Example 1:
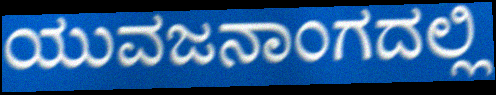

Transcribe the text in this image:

ಯುವಜನಾಂಗದಲ್ಲಿ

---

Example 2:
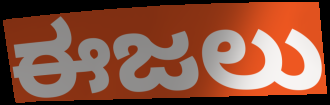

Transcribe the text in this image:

ಈಜಲು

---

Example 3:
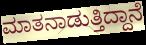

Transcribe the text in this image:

ಮಾತನಾಡುತ್ತಿದ್ದಾನೆ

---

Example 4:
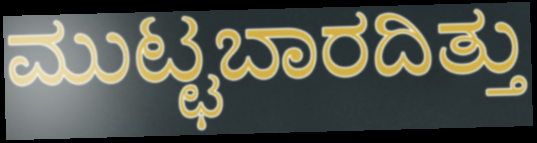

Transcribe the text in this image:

ಮುಟ್ಟಬಾರದಿತ್ತು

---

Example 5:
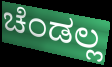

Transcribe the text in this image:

ಚೆಂಡಲ್ಲ